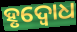
ହୃଦ୍ବୋଧ